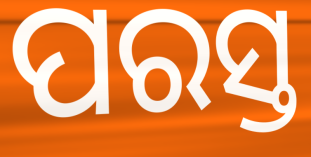
ପରସ୍ତ